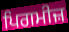
ਪਿਗਮੀਜ਼